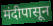
मंदीपासून